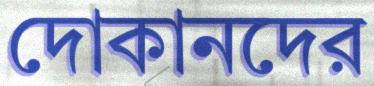
দোকানদের